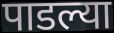
पाडल्या